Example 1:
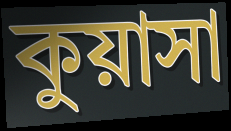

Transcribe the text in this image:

কুয়াসা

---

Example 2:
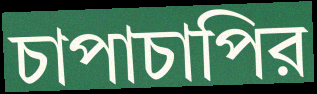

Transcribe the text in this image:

চাপাচাপির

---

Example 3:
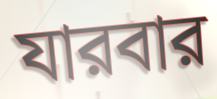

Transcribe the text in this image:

যারবার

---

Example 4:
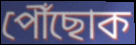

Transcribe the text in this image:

পৌঁছোক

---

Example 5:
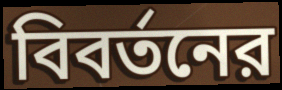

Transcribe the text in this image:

বিবর্তনের